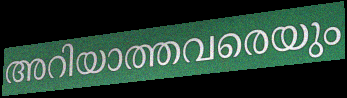
അറിയാത്തവരെയും